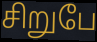
சிறுபே